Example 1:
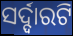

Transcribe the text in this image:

ସର୍ଦ୍ଦାରଟି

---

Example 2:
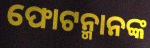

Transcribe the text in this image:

ଫୋଟନ୍ମାନଙ୍କ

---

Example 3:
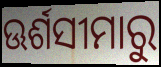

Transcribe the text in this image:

ଊର୍ଶସୀମାରୁ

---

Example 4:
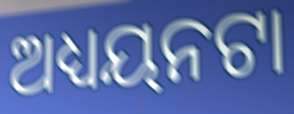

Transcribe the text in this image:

ଅଧ୍ୟୟନଟା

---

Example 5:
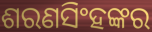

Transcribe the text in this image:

ଶରଣସିଂହଙ୍କର